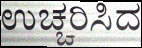
ಉಚ್ಚರಿಸಿದ